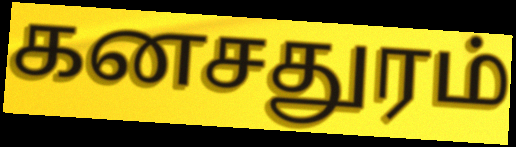
கனசதுரம்